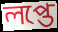
লপ্তে